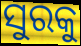
ସୁରକୁ